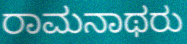
ರಾಮನಾಥರು